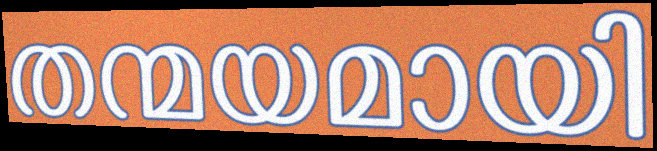
തന്മയമായി